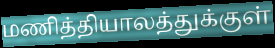
மணித்தியாலத்துக்குள்